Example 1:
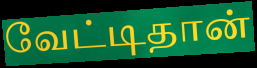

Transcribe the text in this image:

வேட்டிதான்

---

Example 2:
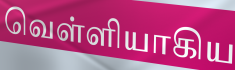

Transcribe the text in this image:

வெள்ளியாகிய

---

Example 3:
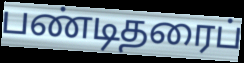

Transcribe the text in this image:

பண்டிதரைப்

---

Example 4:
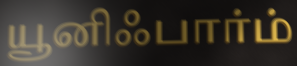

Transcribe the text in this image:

யூனிஃபார்ம்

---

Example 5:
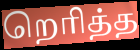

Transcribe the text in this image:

றெரித்த